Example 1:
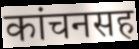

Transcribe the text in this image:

कांचनसह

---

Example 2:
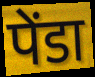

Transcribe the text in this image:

पेंडा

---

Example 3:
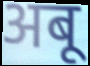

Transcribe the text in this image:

अबू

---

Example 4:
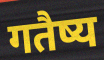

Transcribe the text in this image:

गतैष्य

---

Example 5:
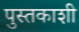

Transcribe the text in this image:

पुस्तकाशी